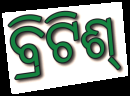
ବ୍ରିଟିଶ୍